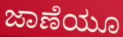
ಜಾಣೆಯೂ